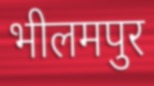
भीलमपुर